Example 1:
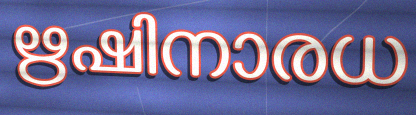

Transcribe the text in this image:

ഋഷിനാരധ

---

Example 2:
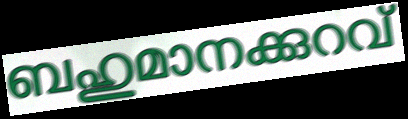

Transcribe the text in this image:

ബഹുമാനക്കുറവ്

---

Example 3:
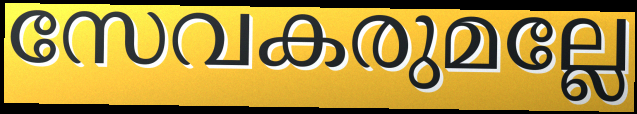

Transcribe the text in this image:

സേവകരുമല്ലേ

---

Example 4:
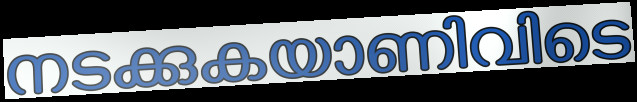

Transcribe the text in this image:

നടക്കുകയാണിവിടെ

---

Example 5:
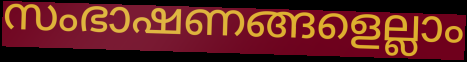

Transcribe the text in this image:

സംഭാഷണങ്ങളെല്ലാം